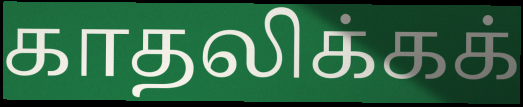
காதலிக்கக்